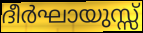
ദീർഘായുസ്സ്